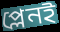
প্লেনই